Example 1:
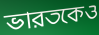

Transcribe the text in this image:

ভারতকেও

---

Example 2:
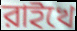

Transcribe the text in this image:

রাইখে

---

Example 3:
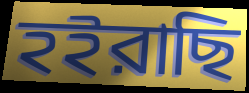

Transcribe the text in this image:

হইরাছি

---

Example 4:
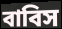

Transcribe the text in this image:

বাবিস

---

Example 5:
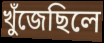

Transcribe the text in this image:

খুঁজেছিলে